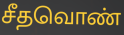
சீதவொண்